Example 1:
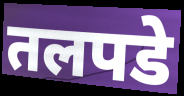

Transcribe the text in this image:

तलपडे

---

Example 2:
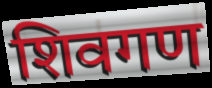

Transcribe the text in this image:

शिवगण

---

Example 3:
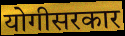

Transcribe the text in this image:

योगीसरकार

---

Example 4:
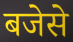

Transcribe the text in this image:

बजेसे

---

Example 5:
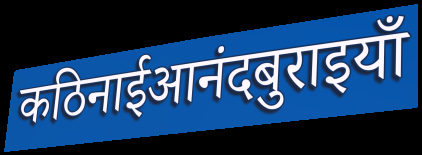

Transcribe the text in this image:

कठिनाईआनंदबुराइयाँ